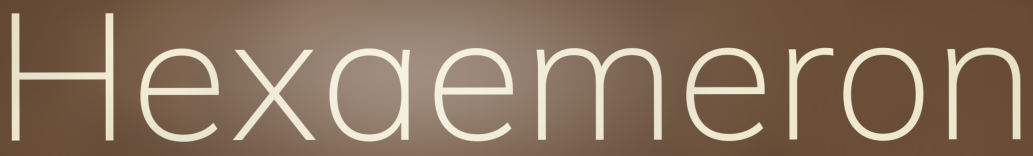
Hexaemeron